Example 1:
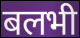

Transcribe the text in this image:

बलभी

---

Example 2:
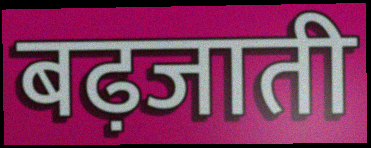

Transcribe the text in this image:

बढ़जाती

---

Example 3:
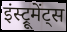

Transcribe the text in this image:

इंस्ट्रूमेंट्स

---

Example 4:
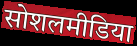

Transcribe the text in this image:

सोशलमीडिया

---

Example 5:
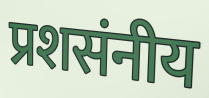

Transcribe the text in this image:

प्रशसंनीय